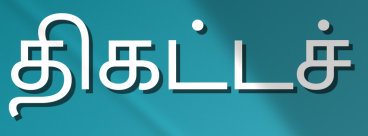
திகட்டச்